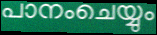
പാനംചെയ്യും